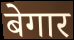
बेगार